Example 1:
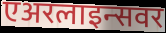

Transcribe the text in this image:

एअरलाइन्सवर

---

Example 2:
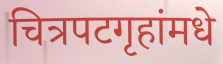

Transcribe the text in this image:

चित्रपटगृहांमधे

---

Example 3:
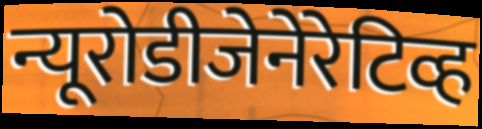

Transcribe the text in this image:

न्यूरोडीजेनेरेटिव्ह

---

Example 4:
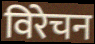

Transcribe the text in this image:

विरेचन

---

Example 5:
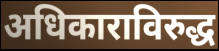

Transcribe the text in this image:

अधिकाराविरुद्ध